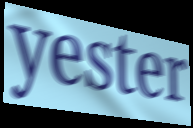
yester